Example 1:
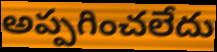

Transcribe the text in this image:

అప్పగించలేదు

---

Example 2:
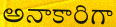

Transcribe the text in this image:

అనాకారిగా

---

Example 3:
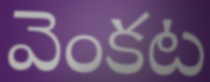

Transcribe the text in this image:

వెంకట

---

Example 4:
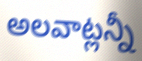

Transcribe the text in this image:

అలవాట్లన్నీ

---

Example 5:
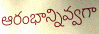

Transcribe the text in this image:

ఆరంభాన్నివ్వగా